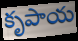
కృపాయ